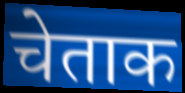
चेताक